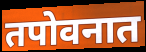
तपोवनात